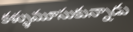
కళ్ళుమూసుకున్నాడు